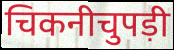
चिकनीचुपड़ी